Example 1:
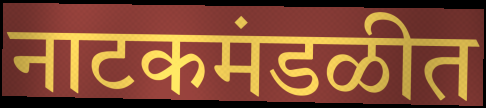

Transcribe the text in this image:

नाटकमंडळीत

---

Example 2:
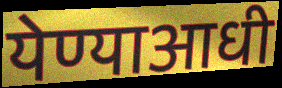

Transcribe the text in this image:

येण्याआधी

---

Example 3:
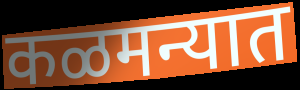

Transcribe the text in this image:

कळमन्यात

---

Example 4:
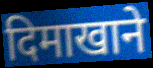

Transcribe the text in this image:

दिमाखाने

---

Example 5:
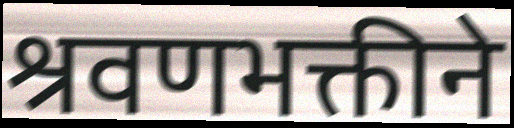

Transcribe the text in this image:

श्रवणभक्तीने